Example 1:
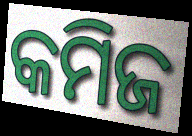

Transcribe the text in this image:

କମିଜ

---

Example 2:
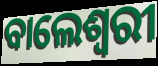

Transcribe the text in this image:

ବାଲେଶ୍ୱରୀ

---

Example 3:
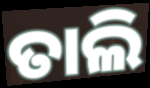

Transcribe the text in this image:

ତାଲି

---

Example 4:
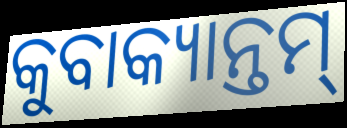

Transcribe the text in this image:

କୁବାକ୍ୟାନ୍ତମ୍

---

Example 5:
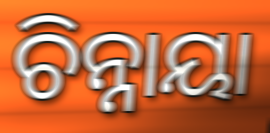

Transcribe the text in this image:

ଚିନ୍ନାୟା